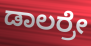
ಡಾಲರ್ರೇ